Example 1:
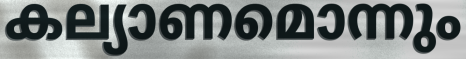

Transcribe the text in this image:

കല്യാണമൊന്നും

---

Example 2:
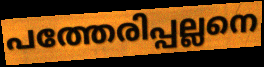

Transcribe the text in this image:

പത്തേരിപ്പല്ലനെ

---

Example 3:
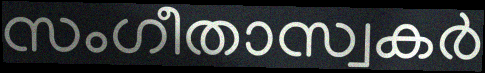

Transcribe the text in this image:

സംഗീതാസ്വകർ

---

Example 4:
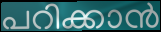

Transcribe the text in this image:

പറിക്കാൻ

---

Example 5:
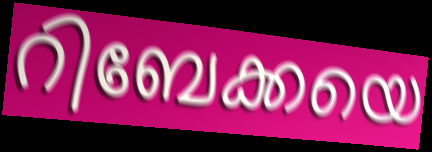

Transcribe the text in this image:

റിബേക്കയെ